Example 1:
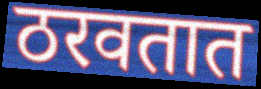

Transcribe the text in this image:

ठरवतात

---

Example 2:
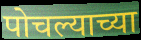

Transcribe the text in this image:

पोचल्याच्या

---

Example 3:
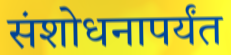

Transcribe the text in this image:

संशोधनापर्यंत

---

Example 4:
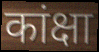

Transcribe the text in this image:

कांक्षा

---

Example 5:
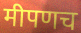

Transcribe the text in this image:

मीपणच